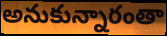
అనుకున్నారంతా